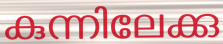
കുന്നിലേക്കു